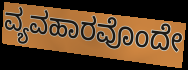
ವ್ಯವಹಾರವೊಂದೇ